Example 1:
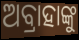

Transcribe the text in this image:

ଅବ୍ରାହାଙ୍କୁ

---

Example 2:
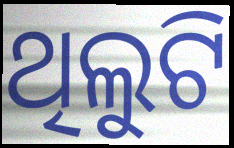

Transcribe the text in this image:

ଥିଲୁଟି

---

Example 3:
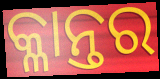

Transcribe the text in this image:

କ୍ଳାନ୍ତର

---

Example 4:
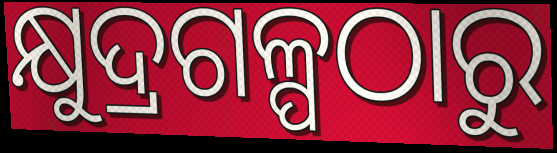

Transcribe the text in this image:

କ୍ଷୁଦ୍ରଗଳ୍ପଠାରୁ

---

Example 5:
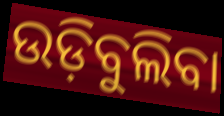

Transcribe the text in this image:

ଉଡ଼ିବୁଲିବା